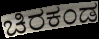
ಚಿರಕಂಡ